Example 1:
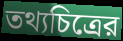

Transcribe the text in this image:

তথ্যচিত্রের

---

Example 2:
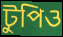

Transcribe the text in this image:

টুপিও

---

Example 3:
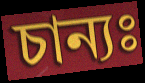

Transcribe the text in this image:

চান্যঃ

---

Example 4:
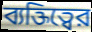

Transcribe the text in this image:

ব্যক্তিত্বের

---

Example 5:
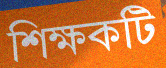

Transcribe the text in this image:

শিক্ষকটি